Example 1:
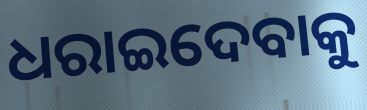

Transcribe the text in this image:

ଧରାଇଦେବାକୁ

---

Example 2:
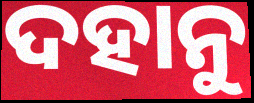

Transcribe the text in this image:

ଦହାନୁ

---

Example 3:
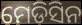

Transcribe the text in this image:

ମେଡିସିନ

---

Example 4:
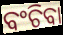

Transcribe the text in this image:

ବଂଚିବା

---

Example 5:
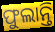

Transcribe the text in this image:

ଫୁଲାନ୍ତି